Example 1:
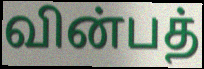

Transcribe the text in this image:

வின்பத்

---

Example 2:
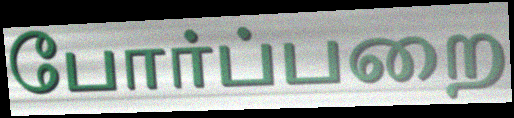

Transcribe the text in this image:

போர்ப்பறை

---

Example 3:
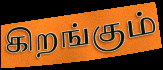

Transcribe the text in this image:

கிறங்கும்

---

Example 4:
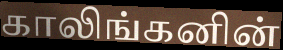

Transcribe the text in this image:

காலிங்கனின்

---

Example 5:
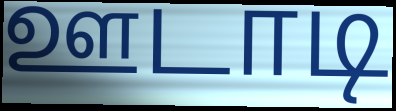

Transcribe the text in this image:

ஊடாடி